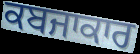
ਕਬਜਾਕਾਰ